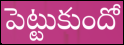
పెట్టుకుందో